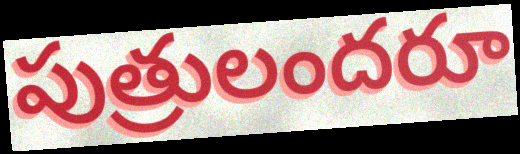
పుత్రులందరూ